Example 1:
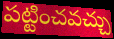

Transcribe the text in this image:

పట్టించవచ్చు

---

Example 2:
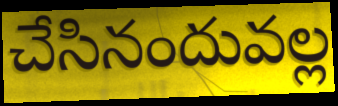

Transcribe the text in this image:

చేసినందువల్ల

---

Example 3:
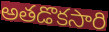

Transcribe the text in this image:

అతడొకసారి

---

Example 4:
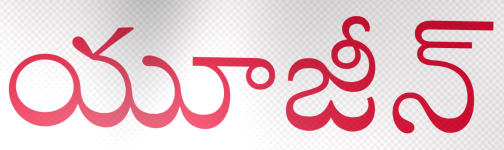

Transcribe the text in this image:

యూజీన్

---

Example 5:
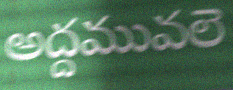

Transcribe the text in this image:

అద్దమువలె